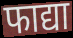
फाद्या